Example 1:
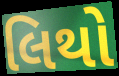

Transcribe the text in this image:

લિથો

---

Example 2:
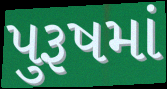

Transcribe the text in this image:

પુરૂષમાં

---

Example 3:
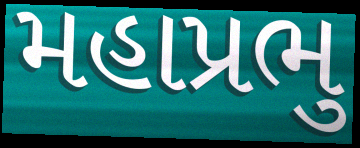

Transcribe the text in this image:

મહાપ્રભુ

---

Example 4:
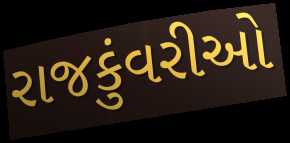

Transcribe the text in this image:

રાજકુંવરીઓ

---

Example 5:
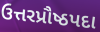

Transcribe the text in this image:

ઉત્તરપ્રૌષ્ઠપદા